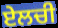
ਏਲਚੀ